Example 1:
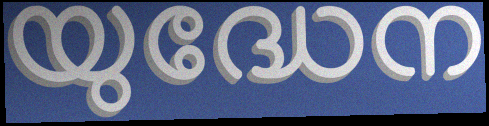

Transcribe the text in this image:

യുദ്ധേന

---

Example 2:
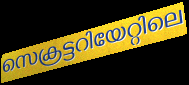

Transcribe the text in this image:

സെക്രട്ടറിയേറ്റിലെ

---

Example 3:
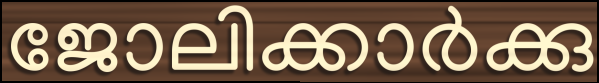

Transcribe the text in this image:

ജോലിക്കാർക്കു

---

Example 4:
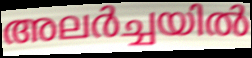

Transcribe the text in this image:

അലർച്ചയിൽ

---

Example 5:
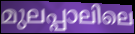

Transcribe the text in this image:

മുലപ്പാലിലെ